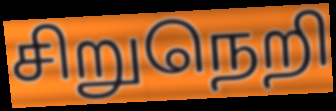
சிறுநெறி